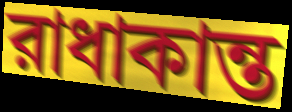
রাধাকান্ত